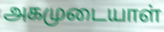
அகமுடையாள்